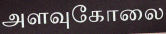
அளவுகோலை